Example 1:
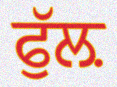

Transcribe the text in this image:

ਫੁੱਲ਼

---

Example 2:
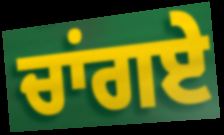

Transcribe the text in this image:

ਚਾਂਗਏ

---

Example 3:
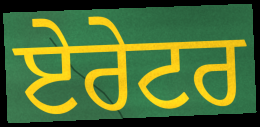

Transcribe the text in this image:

ਏਰੇਟਰ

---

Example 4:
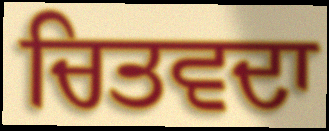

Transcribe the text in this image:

ਚਿਤਵਦਾ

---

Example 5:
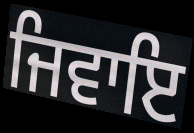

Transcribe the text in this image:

ਜਿਵਾਇ